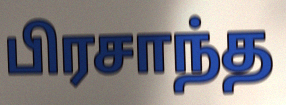
பிரசாந்த